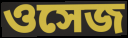
ওসেজ